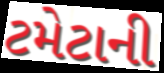
ટમેટાની